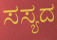
ಸಸ್ಯದ